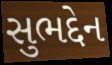
સુભદ્દેન